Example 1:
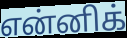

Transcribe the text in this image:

என்னிக்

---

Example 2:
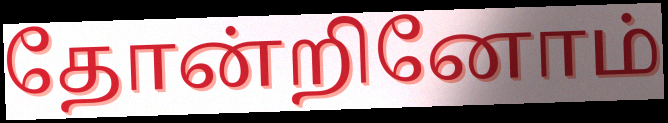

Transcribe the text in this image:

தோன்றினோம்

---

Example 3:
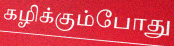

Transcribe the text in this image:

கழிக்கும்போது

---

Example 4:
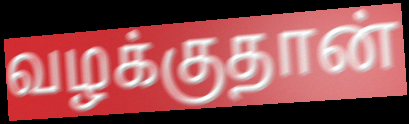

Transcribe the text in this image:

வழக்குதான்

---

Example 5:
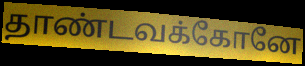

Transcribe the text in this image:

தாண்டவக்கோனே